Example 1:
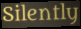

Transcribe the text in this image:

Silently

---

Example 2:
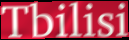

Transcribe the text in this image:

Tbilisi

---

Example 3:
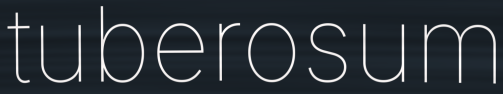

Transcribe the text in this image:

tuberosum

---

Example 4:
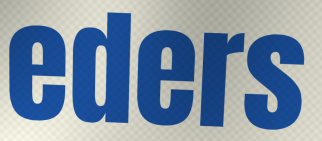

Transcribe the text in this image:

eders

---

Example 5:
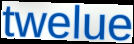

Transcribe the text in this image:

twelue